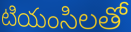
టియంసిలతో